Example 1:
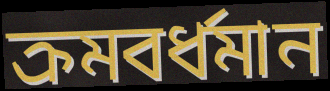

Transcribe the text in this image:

ক্ৰমবৰ্ধমান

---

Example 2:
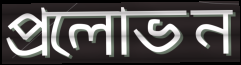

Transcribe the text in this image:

প্ৰলোভন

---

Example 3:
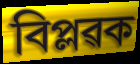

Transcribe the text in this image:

বিপ্লৱক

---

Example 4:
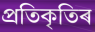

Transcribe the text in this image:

প্ৰতিকৃতিৰ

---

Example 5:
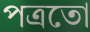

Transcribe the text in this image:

পত্ৰতো